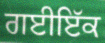
ਗਈਇੱਕ